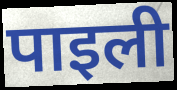
पाइली